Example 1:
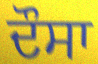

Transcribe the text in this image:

ਦੌਸਾ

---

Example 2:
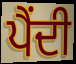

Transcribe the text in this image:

ਪੈਂਦੀ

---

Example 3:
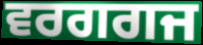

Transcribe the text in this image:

ਵਰਗਗਜ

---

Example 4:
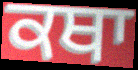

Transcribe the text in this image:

ਕਥਾ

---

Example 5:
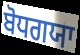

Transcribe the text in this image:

ਬੋਧਗਯਾ